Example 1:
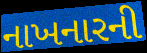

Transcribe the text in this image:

નાખનારની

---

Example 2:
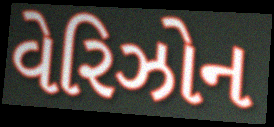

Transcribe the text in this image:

વેરિઝોન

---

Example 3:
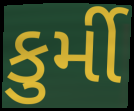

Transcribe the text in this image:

કુર્મી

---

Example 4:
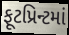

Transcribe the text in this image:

ફૂટપ્રિન્ટમાં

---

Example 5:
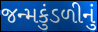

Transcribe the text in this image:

જન્મકુંડળીનું